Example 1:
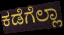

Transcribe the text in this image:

ಕಡೆಗೆಲ್ಲಾ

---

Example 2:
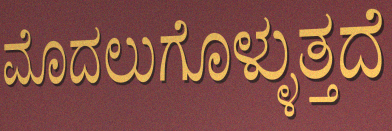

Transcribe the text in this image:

ಮೊದಲುಗೊಳ್ಳುತ್ತದೆ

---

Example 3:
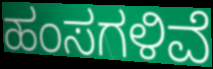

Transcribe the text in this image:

ಹಂಸಗಳಿವೆ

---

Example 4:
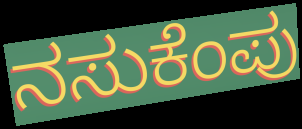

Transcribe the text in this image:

ನಸುಕೆಂಪು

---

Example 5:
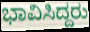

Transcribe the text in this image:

ಭಾವಿಸಿದ್ದರು